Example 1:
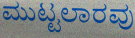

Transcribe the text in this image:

ಮುಟ್ಟಲಾರವು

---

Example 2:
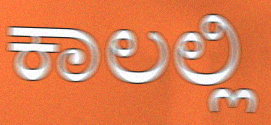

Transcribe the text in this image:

ಕಾಲಲ್ಲಿ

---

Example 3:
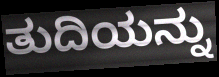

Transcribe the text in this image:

ತುದಿಯನ್ನು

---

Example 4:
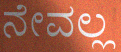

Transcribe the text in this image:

ನೇವಲ್ಲ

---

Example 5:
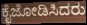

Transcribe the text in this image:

ಕೈಜೋಡಿಸಿದರು